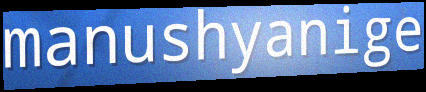
manushyanige